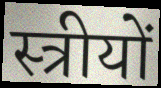
स्त्रीयों